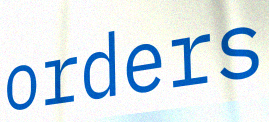
orders